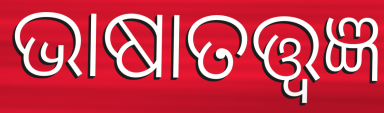
ଭାଷାତତ୍ତ୍ୱଜ୍ଞ